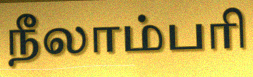
நீலாம்பரி